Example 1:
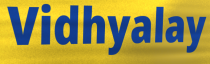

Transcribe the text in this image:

Vidhyalay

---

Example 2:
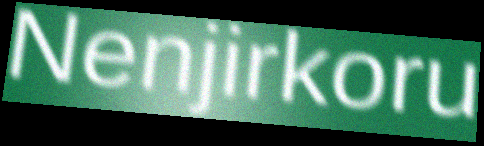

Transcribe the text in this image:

Nenjirkoru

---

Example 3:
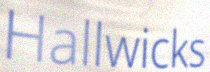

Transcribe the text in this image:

Hallwicks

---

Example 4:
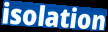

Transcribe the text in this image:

isolation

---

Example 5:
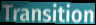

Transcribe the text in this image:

Transition